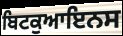
ਬਿਟਕੁਆਇਨਸ